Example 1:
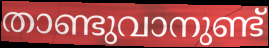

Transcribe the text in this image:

താണ്ടുവാനുണ്ട്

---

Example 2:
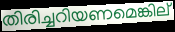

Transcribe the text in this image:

തിരിച്ചറിയണമെങ്കില്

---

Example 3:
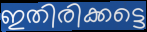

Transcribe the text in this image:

ഇതിരിക്കട്ടെ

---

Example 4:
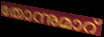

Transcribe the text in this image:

തോന്നുമാറ്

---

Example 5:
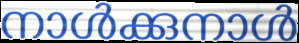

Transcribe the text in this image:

നാൾക്കുനാൾ